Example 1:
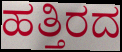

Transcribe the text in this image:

ಹತ್ತಿರದ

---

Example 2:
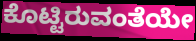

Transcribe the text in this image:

ಕೊಟ್ಟಿರುವಂತೆಯೇ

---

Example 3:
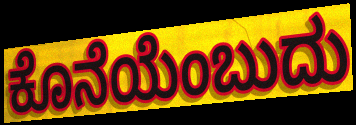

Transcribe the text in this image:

ಕೊನೆಯೆಂಬುದು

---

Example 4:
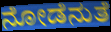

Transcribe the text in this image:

ನೋಡೆನುತೆ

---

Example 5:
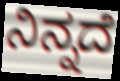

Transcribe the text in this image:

ನಿನ್ನದೆ